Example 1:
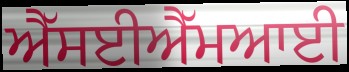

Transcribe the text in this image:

ਐੱਸਈਐੱਮਆਈ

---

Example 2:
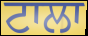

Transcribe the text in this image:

ਟਾਲਾ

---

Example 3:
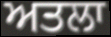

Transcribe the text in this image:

ਅਤਲਾ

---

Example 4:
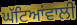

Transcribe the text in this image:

ਘੱਟਿਆਂਵਾਲੀ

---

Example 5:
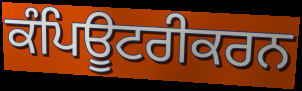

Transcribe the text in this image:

ਕੰਪਿਊਟਰੀਕਰਨ